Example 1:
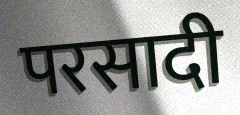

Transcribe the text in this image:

परसादी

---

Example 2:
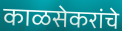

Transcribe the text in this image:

काळसेकरांचे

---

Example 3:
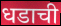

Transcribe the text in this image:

धडाची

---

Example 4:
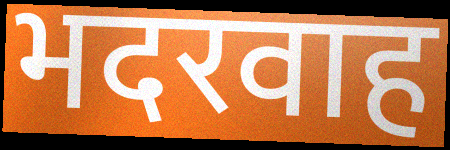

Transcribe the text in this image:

भदरवाह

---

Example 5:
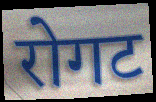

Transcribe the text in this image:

रोगट